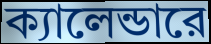
ক্যালেন্ডারে